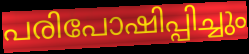
പരിപോഷിപ്പിച്ചും